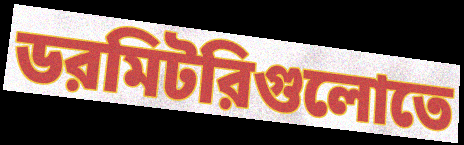
ডরমিটরিগুলোতে